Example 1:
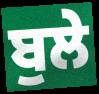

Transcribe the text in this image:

ਬੁਲੇ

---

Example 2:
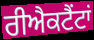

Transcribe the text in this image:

ਰੀਐਕਟੈਂਟਾਂ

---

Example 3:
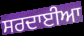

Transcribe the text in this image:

ਸਰਦਾਈਆ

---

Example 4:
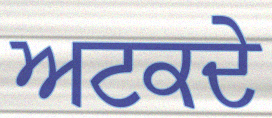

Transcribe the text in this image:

ਅਟਕਦੇ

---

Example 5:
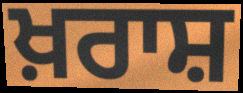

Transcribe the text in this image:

ਖ਼ਰਾਸ਼